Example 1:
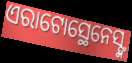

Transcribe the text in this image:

ଏରାଟୋସ୍ଥେନେସ୍ଙ୍କ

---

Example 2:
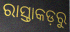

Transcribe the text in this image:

ରାସ୍ତାକଡ଼ରୁ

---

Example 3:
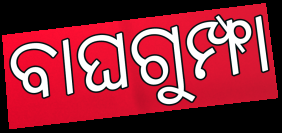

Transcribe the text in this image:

ବାଘଗୁମ୍ଫା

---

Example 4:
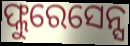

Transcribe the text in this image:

ଫ୍ଲୁରେସେନ୍ସ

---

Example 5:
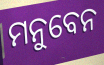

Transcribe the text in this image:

ମନୁବେନ